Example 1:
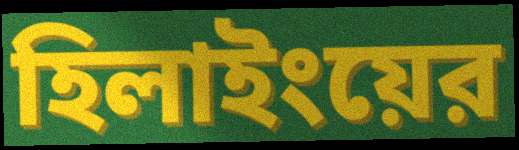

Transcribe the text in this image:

হিলাইংয়ের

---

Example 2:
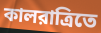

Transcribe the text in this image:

কালরাত্রিতে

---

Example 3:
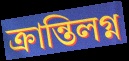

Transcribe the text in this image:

ক্রান্তিলগ্ন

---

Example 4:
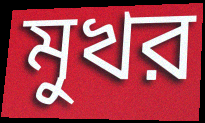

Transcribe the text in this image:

মুখর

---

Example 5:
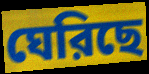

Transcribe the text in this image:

ঘেরিছে